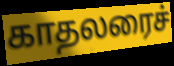
காதலரைச்